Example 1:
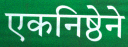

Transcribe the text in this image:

एकनिष्ठेने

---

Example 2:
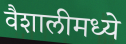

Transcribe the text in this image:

वैशालीमध्ये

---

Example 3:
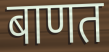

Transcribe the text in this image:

बाणत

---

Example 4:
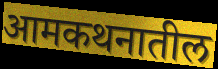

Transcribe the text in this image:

आमकथनातील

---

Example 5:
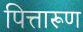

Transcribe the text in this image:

पित्तारूण